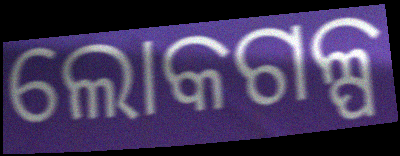
ଲୋକଗଳ୍ପ